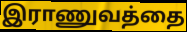
இராணுவத்தை